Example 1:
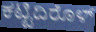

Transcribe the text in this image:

ಕಟ್ಟಿದಿರೊಳ್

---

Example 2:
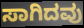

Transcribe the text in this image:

ಸಾಗಿದವು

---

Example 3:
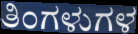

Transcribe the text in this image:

ತಿಂಗಳುಗಳ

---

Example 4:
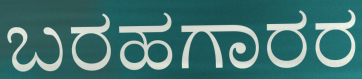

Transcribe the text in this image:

ಬರಹಗಾರರ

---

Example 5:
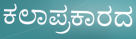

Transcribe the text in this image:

ಕಲಾಪ್ರಕಾರದ